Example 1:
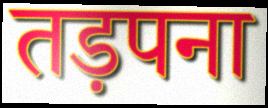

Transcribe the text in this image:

तड़पना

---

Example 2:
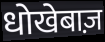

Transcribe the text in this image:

धोखेबाज़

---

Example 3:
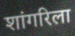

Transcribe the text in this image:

शांगरिला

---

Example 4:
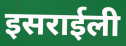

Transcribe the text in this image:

इसराईली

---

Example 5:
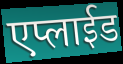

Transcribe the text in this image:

एप्लाईड